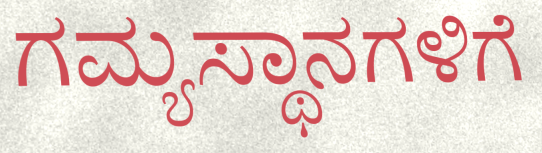
ಗಮ್ಯಸ್ಥಾನಗಳಿಗೆ